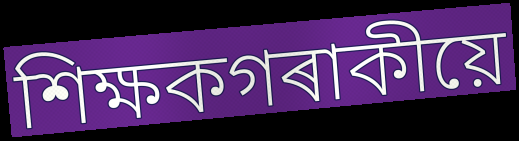
শিক্ষকগৰাকীয়ে